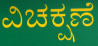
ವಿಚಕ್ಷಣೆ